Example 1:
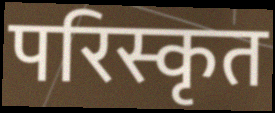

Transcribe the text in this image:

परिस्कृत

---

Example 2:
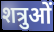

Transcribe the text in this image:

शत्रुओं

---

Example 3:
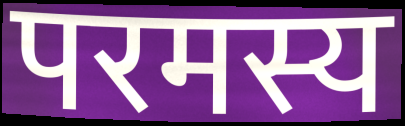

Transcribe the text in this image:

परमस्य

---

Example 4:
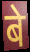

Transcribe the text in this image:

बे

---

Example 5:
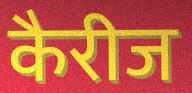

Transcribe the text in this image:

कैरीज